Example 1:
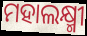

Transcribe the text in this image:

ମହାଲକ୍ଷ୍ମୀ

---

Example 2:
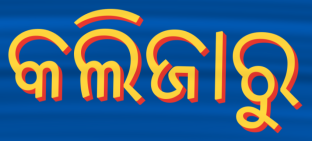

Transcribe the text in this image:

କଲିଜାରୁ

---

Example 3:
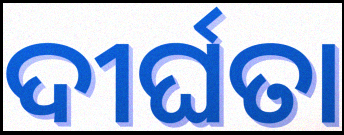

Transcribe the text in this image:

ଦୀର୍ଘତା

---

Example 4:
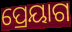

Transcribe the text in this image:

ପ୍ରେୟାଗ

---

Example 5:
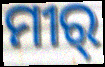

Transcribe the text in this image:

ମୀର୍